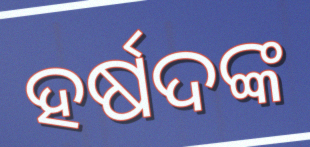
ହର୍ଷଦଙ୍କ